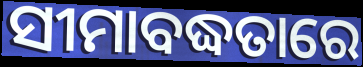
ସୀମାବଦ୍ଧତାରେ